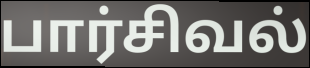
பார்சிவல்